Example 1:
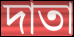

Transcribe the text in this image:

দাতা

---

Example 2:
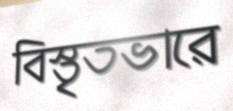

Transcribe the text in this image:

বিস্তৃতভাৱে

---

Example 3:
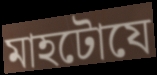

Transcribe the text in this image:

মাহটোযে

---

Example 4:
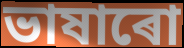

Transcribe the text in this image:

ভাষাৰো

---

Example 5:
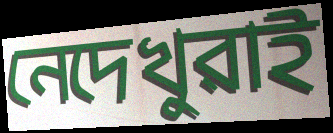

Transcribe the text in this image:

নেদেখুৱাই